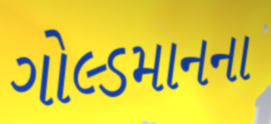
ગોલ્ડમાનના